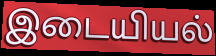
இடையியல்